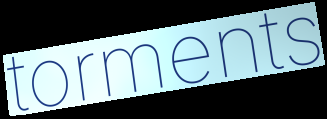
torments